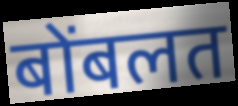
बोंबलत